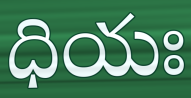
ధియః